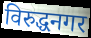
विरुद्धनगर